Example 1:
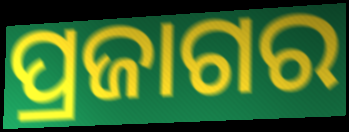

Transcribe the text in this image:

ପ୍ରଜାଗର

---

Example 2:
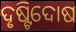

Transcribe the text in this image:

ଦୃଷ୍ଟିଦୋଷ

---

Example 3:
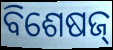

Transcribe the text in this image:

ବିଶେଷଜ୍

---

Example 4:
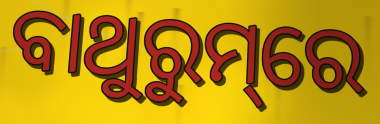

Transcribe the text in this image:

ବାଥୁରୁମ୍‌ରେ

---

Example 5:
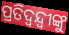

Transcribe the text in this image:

ପ୍ରତିଦ୍ଵନ୍ଦ୍ୱୀଙ୍କୁ